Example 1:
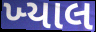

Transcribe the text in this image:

ખ્‍યાલ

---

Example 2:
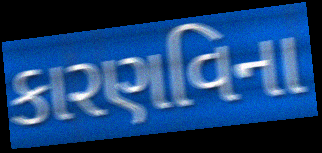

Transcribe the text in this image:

કારણવિના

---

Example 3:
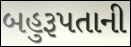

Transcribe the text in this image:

બહુરૂપતાની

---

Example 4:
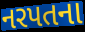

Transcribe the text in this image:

નરપતના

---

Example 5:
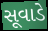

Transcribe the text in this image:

સૂવાડે